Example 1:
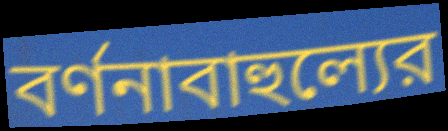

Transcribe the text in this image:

বর্ণনাবাহুল্যের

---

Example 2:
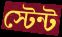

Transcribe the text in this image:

স্টেন্ট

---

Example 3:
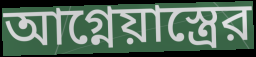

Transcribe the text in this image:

আগ্নেয়াস্ত্রের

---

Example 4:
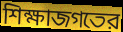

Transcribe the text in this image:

শিক্ষাজগতের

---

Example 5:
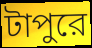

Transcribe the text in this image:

টাপুরে